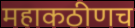
महाकठीणच